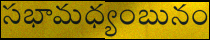
సభామధ్యంబునం